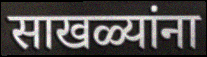
साखळ्यांना